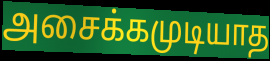
அசைக்கமுடியாத